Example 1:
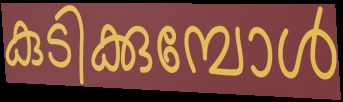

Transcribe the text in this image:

കുടിക്കുമ്പോൾ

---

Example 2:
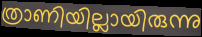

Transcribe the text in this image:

ത്രാണിയില്ലായിരുന്നു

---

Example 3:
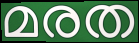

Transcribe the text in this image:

മരത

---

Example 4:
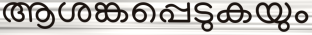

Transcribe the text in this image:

ആശങ്കപ്പെടുകയും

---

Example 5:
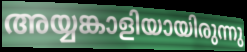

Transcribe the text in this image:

അയ്യങ്കാളിയായിരുന്നു